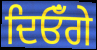
ਦਿਓਁਗੇ